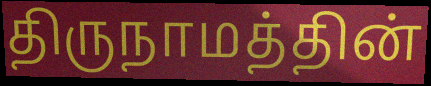
திருநாமத்தின்